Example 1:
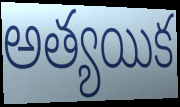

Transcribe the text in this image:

అత్యయిక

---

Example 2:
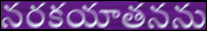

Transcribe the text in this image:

నరకయాతనను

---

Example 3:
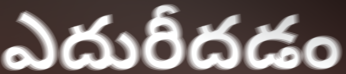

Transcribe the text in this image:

ఎదురీదడం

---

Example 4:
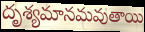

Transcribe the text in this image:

దృశ్యమానమవుతాయి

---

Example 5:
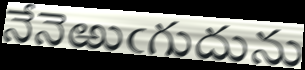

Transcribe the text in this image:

నేనెఱుఁగుదును